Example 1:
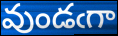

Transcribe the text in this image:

వుండఁగా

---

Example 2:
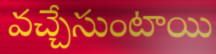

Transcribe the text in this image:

వచ్చేసుంటాయి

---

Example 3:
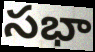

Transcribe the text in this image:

సభా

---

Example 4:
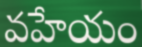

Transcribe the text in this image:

వహేయం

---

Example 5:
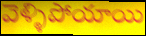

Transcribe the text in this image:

వెళ్ళిపోయాయి